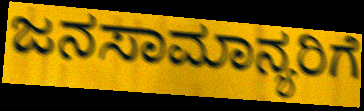
ಜನಸಾಮಾನ್ಯರಿಗೆ